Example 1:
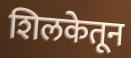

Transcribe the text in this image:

शिलकेतून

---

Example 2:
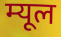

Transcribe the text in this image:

म्यूल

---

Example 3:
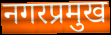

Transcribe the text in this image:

नगरप्रमुख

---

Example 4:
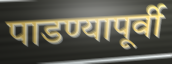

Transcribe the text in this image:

पाडण्यापूर्वी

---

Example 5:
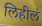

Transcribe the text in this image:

लिहीलं